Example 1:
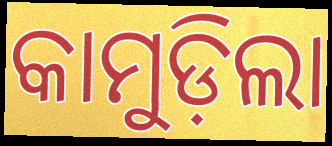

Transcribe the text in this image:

କାମୁଡ଼ିଲା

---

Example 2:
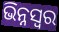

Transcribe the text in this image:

ଭିନ୍ନସ୍ବର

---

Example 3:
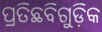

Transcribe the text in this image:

ପ୍ରତିଛବିଗୁଡ଼ିକ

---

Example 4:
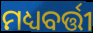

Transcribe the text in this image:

ମଧ୍ୟବର୍ତ୍ତୀ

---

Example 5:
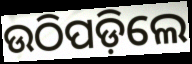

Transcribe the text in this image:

ଉଠିପଡ଼ିଲେ